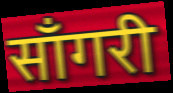
साँगरी